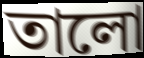
তালো